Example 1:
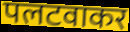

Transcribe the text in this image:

पलटवाकर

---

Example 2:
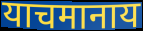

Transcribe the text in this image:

याचमानाय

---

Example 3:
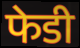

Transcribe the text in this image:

फेडी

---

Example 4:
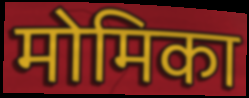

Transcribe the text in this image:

मोमिका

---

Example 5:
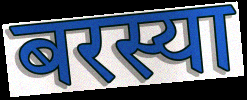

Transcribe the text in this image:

बरस्या